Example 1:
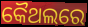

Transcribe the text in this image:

କୈଥଲରେ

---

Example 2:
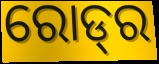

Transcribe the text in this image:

ରୋଡ୍‌ର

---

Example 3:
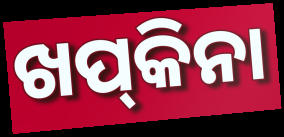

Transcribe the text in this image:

ଖପ୍‍କିନା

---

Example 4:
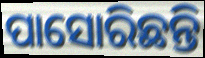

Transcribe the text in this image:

ପାସୋରିଛନ୍ତି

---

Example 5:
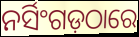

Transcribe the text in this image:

ନର୍ସିଂଗଡ଼ଠାରେ